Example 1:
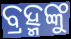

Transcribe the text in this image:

ବ୍ରହ୍ମଙ୍କୁ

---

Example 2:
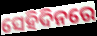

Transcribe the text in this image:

ସେହିଦିନରେ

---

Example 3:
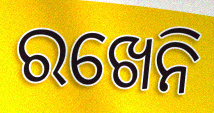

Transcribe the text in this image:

ରଖେନି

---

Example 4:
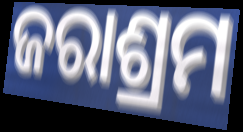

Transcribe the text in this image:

ଜରାଶ୍ରମ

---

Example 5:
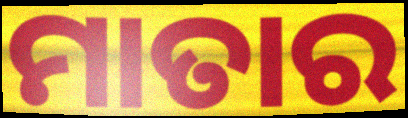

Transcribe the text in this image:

ମାତାର